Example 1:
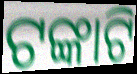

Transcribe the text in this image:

ଟଙ୍କାଟି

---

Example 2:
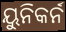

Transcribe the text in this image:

ୟୁନିକର୍ନ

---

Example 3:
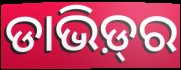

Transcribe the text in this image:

ଡାଭିଡ଼୍‍ର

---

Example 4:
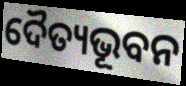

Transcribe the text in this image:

ଦୈତ୍ୟଭୂବନ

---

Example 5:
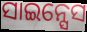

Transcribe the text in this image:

ସାଇନ୍ସେସ